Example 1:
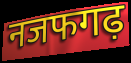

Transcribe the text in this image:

नजफगढ़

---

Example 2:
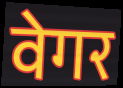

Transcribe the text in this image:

वेगर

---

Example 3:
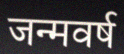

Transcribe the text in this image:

जन्मवर्ष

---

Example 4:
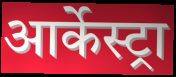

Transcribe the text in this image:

आर्केस्ट्रा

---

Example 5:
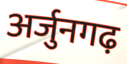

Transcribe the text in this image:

अर्जुनगढ़